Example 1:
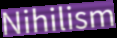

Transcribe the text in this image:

Nihilism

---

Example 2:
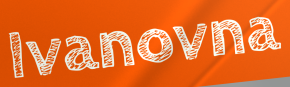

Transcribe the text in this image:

Ivanovna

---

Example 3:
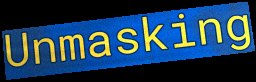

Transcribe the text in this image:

Unmasking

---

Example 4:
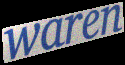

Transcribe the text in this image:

waren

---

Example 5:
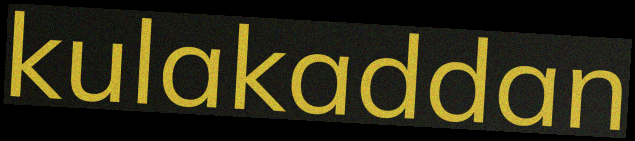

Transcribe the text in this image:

kulakaddan